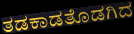
ತಡಕಾಡತೊಡಗಿದ